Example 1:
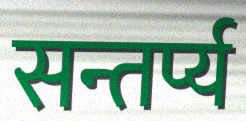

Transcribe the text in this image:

सन्तर्प्य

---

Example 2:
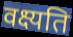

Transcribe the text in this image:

वक्ष्यति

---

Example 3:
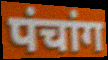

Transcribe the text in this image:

पंचांग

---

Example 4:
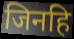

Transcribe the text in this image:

जिनहि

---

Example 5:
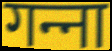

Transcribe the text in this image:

गन्‍ना